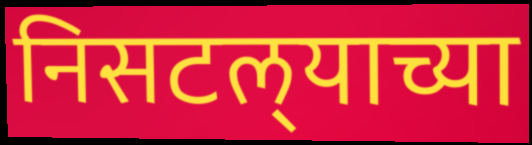
निसटल्याच्या